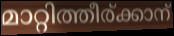
മാറ്റിത്തീര്ക്കാന്